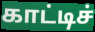
காட்டிச்